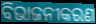
ବିଭାଜନୀକରଣ